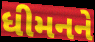
ધીમનને